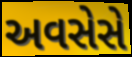
અવસેસે